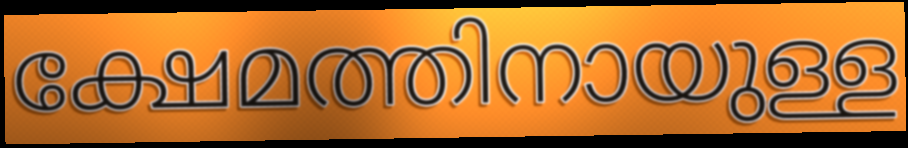
ക്ഷേമത്തിനായുള്ള